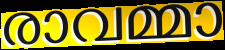
രാവമ്മാ